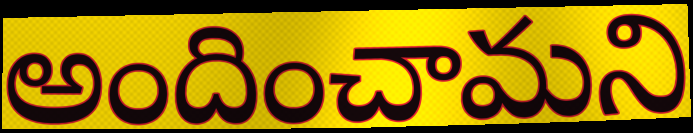
అందించామని